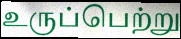
உருப்பெற்று